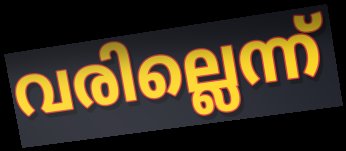
വരില്ലെന്ന്